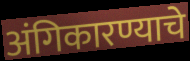
अंगिकारण्याचे